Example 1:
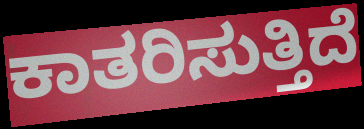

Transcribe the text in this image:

ಕಾತರಿಸುತ್ತಿದೆ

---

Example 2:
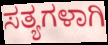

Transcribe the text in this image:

ಸತ್ಯಗಳಾಗಿ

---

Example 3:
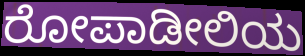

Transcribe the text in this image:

ರೋಪಾಡೀಲಿಯ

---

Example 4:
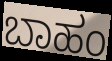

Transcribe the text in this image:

ಬಾಹಂ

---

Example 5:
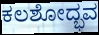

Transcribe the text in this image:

ಕಲಶೋದ್ಭವ